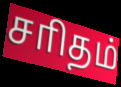
சரிதம்